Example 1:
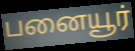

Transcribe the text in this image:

பனையூர்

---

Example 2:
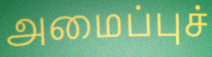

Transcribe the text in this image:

அமைப்புச்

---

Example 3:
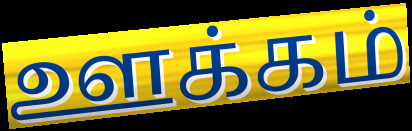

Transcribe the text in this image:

ஊக்கம்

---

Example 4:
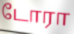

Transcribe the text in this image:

டோரா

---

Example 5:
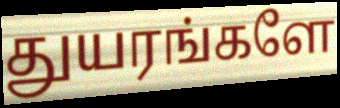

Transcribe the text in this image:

துயரங்களே